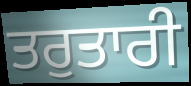
ਤਰੁਤਾਰੀ